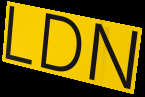
LDN